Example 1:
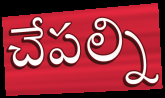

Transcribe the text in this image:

చేపల్ని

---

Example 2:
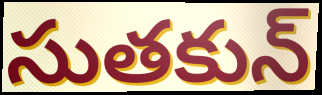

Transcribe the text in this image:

సుతకున్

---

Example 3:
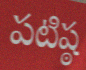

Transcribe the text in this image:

పటిష్ఠ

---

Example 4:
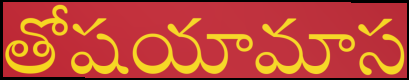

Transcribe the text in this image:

తోషయామాస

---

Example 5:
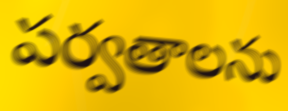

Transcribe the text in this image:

పర్వతాలను